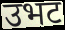
उभट